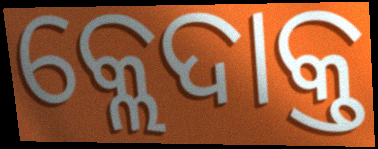
କ୍ଲେଦାକ୍ତ